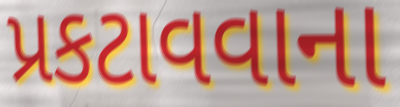
પ્રકટાવવાના